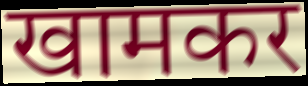
खामकर